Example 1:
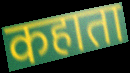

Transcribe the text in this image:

कहाता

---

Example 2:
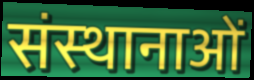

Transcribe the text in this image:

संस्थानाओं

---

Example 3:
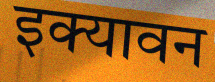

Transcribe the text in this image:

इक्यावन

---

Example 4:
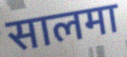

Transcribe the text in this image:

सालमा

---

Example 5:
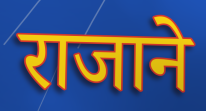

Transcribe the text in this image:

राजाने